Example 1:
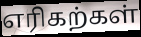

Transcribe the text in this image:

எரிகற்கள்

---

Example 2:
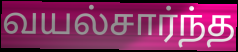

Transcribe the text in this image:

வயல்சார்ந்த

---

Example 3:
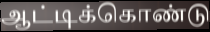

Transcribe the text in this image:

ஆட்டிக்கொண்டு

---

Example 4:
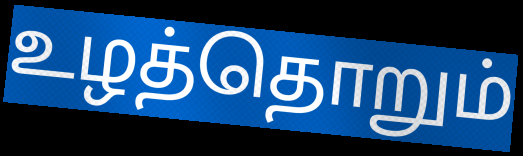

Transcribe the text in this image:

உழத்தொறும்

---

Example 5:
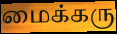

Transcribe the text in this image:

மைக்கரு